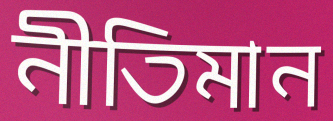
নীতিমান